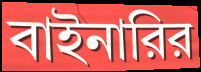
বাইনারির